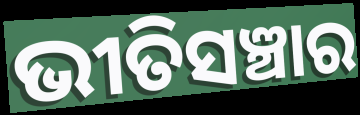
ଭୀତିସଞ୍ଚାର